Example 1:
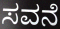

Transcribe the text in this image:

ಸವನೆ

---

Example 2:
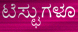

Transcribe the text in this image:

ಟೆಸ್ಟುಗಳೂ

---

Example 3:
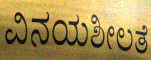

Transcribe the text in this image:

ವಿನಯಶೀಲತೆ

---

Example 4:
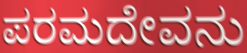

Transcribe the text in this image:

ಪರಮದೇವನು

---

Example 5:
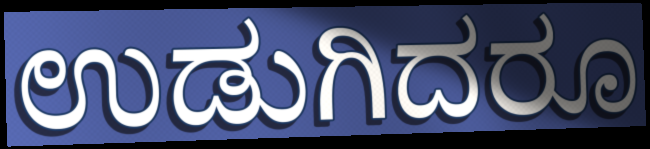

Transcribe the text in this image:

ಉಡುಗಿದರೂ